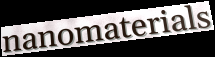
nanomaterials